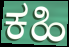
ಕಹಿ